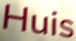
Huis